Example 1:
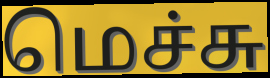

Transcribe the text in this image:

மெச்சு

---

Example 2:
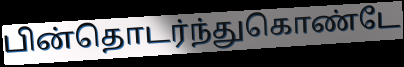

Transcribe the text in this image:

பின்தொடர்ந்துகொண்டே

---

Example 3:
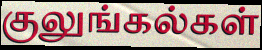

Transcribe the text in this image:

குலுங்கல்கள்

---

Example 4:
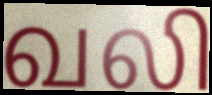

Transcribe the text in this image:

வலி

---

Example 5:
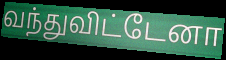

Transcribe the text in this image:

வந்துவிட்டேனா